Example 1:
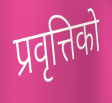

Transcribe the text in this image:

प्रवृत्तिको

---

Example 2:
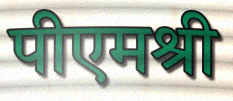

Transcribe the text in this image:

पीएमश्री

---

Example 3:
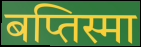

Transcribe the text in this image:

बप्तिस्मा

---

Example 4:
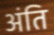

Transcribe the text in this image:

अंति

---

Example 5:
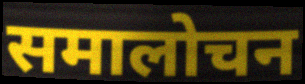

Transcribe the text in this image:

समालोचन